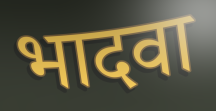
भादवा